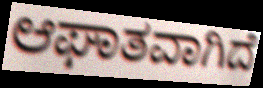
ಆಘಾತವಾಗಿದೆ